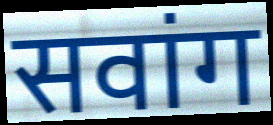
सवांग